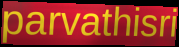
parvathisri